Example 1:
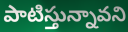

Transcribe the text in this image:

పాటిస్తున్నావని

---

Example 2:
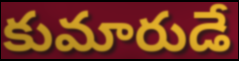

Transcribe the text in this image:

కుమారుడే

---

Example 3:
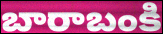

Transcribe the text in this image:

బారాబంకి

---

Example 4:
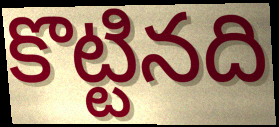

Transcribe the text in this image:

కొట్టినది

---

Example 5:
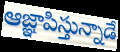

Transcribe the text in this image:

ఆజ్ఞాపిస్తున్నాడే